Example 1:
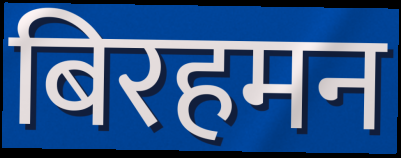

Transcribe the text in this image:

बिरहमन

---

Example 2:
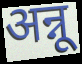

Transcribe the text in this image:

अन्नू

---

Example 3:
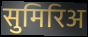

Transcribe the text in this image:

सुमिरिअ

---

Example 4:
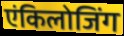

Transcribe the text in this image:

एंकिलोजिंग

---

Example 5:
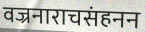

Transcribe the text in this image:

वज्रनाराचसंहनन